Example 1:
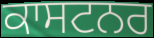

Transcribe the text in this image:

ਕਾਸਟਨਰ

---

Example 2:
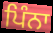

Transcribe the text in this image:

ਪਿੰਨਾ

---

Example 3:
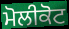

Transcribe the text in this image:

ਮੋਲੀਕੋਟ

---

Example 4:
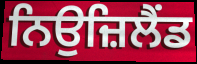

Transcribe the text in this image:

ਨਿਉਜ਼ਿਲੈਂਡ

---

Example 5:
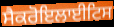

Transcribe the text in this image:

ਸੈਕਰੋਇਲਾਈਟਿਸ